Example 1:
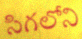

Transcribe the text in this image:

సిగలోని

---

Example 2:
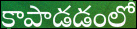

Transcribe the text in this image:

కాపాడడంలో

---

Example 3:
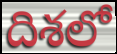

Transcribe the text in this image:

దిశలో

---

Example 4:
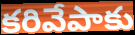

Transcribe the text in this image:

కరివేపాకు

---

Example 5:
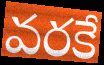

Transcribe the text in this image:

వరకే